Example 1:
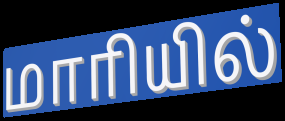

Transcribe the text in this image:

மாரியில்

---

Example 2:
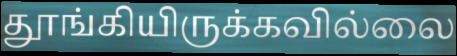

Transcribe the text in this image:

தூங்கியிருக்கவில்லை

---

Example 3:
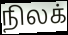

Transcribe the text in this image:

நிலக்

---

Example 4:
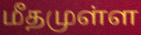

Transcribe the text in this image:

மீதமுள்ள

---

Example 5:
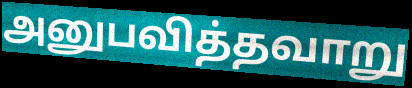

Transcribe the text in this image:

அனுபவித்தவாறு